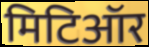
मिटिऑर